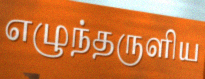
எழுந்தருளிய